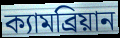
ক্যামব্রিয়ান